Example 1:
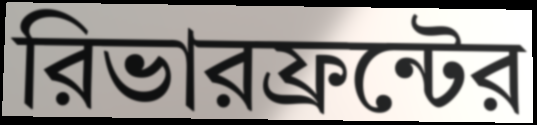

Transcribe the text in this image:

রিভারফ্রন্টের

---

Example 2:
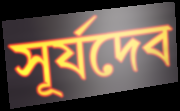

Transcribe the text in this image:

সূর্যদেব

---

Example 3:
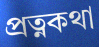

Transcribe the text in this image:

প্রত্নকথা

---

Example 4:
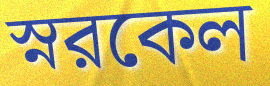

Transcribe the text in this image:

স্নরকেল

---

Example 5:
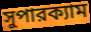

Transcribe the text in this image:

সুপারক্যাম